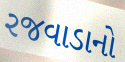
રજવાડાનો